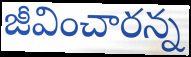
జీవించారన్న